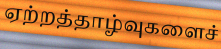
ஏற்றத்தாழ்வுகளைச்